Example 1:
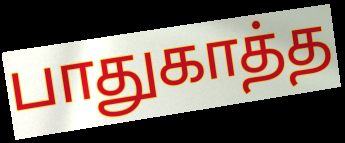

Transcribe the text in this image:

பாதுகாத்த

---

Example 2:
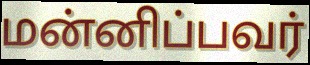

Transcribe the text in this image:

மன்னிப்பவர்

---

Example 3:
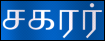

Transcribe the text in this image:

சகரர்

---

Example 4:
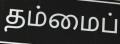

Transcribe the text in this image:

தம்மைப்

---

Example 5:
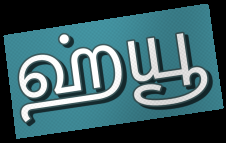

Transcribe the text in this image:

ஹ்யூ